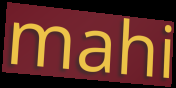
mahi